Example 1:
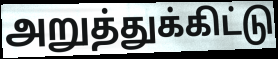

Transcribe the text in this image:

அறுத்துக்கிட்டு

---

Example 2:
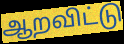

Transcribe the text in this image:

ஆறவிட்டு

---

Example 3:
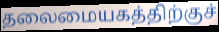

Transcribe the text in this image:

தலைமையகத்திற்குச்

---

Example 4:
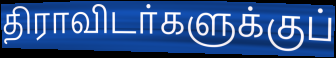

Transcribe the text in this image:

திராவிடர்களுக்குப்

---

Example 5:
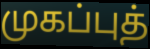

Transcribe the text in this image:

முகப்புத்